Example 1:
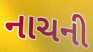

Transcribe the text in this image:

નાચની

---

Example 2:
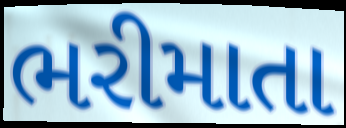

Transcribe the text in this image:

ભરીમાતા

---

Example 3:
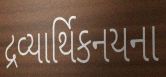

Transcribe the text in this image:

દ્રવ્યાર્થિકનયના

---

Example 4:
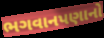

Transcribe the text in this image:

ભગવાનપણાનો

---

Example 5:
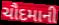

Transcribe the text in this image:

ચૌદમાની